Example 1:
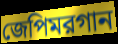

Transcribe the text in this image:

জেপিমরগান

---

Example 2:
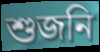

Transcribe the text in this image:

শুজনি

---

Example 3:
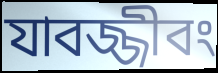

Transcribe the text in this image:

যাবজ্জীবং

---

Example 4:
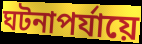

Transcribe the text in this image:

ঘটনাপর্যায়ে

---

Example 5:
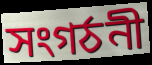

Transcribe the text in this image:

সংগঠনী